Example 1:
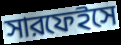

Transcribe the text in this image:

সারফেইসে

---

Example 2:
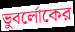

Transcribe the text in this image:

ভুবর্লোকের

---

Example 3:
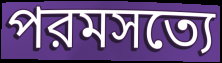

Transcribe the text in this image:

পরমসত্যে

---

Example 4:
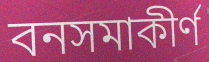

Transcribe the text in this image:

বনসমাকীর্ণ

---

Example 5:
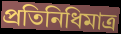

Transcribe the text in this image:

প্রতিনিধিমাত্র